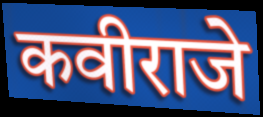
कवीराजे